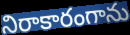
నిరాకారంగాను